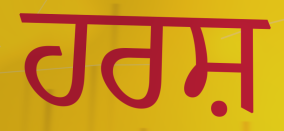
ਹਰਸ਼